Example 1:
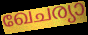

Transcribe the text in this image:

ഖേചര്യാ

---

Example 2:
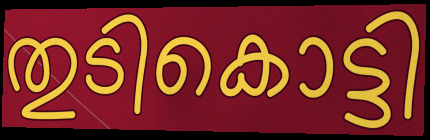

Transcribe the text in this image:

തുടികൊട്ടി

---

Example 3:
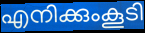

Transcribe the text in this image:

എനിക്കുംകൂടി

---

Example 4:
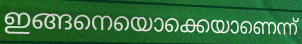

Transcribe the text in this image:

ഇങ്ങനെയൊക്കെയാണെന്ന്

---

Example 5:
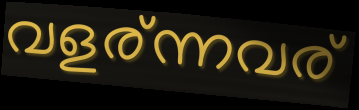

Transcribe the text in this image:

വളര്ന്നവര്